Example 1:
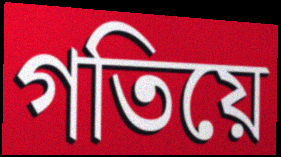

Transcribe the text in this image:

গতিয়ে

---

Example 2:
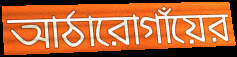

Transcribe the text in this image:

আঠারোগাঁয়ের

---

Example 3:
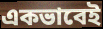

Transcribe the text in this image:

একভাবেই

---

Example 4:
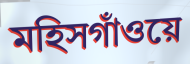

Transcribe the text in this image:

মহিসগাঁওয়ে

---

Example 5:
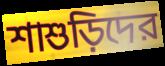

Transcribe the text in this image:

শাশুড়িদের